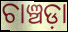
ଚାଞ୍ଚଡ଼ା